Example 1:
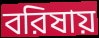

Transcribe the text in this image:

বরিষায়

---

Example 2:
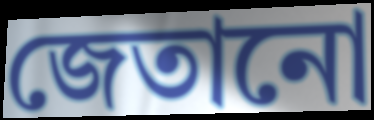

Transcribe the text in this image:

জেতানো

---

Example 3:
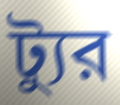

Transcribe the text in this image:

ট্যুর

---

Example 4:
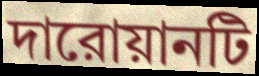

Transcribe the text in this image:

দারোয়ানটি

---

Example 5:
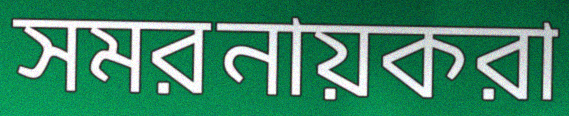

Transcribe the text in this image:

সমরনায়করা